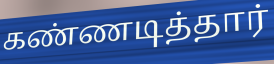
கண்ணடித்தார்